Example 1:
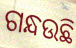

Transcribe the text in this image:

ଗନ୍ଧଉଛି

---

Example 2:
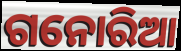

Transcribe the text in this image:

ଗନୋରିଆ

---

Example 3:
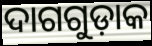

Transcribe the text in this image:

ଦାଗଗୁଡ଼ାକ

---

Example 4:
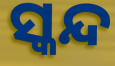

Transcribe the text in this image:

ସ୍କନ୍ଦ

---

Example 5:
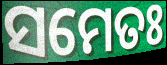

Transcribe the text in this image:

ସମେତଃ